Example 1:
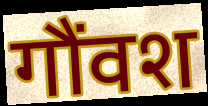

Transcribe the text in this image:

गौंवश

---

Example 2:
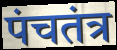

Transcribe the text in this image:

पंचतंत्र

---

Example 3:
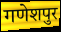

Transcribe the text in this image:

गणेशपुर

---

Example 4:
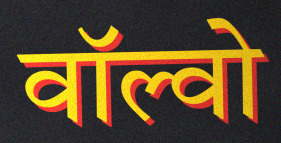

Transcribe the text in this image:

वॉल्‍वो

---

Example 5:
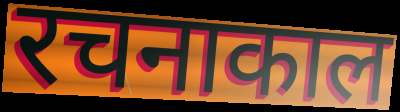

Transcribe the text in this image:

रचनाकाल